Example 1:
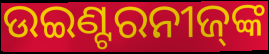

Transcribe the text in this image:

ଉଇଣ୍ଟରନୀଜ୍‌ଙ୍କ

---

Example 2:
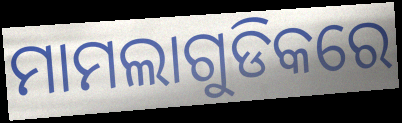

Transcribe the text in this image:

ମାମଲାଗୁଡିକରେ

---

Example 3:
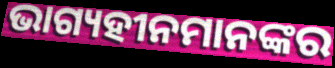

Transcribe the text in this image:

ଭାଗ୍ୟହୀନମାନଙ୍କର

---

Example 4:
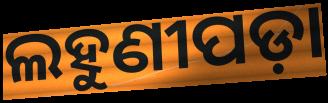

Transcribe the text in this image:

ଲହୁଣୀପଡ଼ା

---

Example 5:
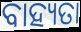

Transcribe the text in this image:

ବାହ୍ୟତା